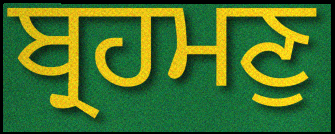
ਬ੍ਰਹਮਣੁ